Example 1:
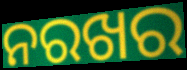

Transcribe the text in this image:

ନରଖର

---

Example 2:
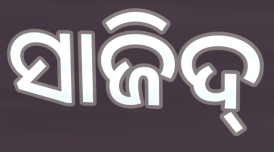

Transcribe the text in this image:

ସାଜିଦ୍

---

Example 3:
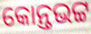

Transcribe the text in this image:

କୋନ୍ତଭଟ୍ଟ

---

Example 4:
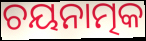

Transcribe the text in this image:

ଚୟନାତ୍ମକ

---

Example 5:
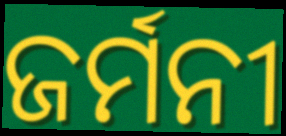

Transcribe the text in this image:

ଜର୍ମନୀ